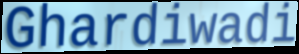
Ghardiwadi